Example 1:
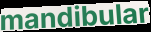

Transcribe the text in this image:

mandibular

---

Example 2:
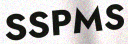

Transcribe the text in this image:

SSPMS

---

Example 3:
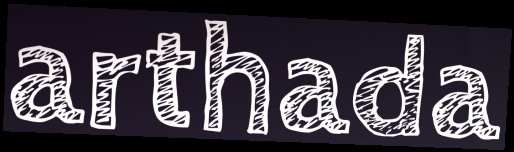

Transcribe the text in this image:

arthada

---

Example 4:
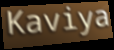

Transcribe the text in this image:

Kaviya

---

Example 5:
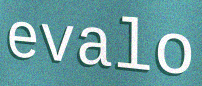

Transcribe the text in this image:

evalo